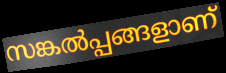
സങ്കൽപ്പങ്ങളാണ്